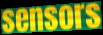
sensors